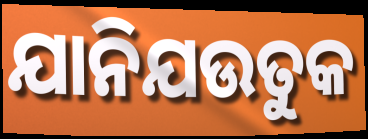
ଯାନିଯଉତୁକ